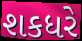
શકધરે